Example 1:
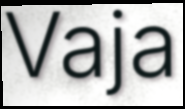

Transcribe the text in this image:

Vaja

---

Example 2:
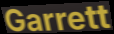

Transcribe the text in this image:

Garrett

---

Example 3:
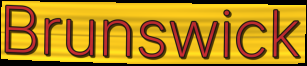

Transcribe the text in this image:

Brunswick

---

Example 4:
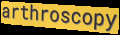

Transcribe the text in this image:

arthroscopy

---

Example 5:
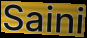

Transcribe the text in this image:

Saini